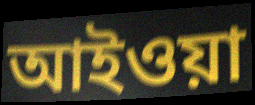
আইওয়া